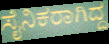
ಸೈನಿಕರಾಗಿದ್ದ